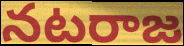
నటరాజ